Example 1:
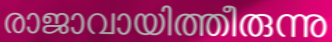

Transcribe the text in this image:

രാജാവായിത്തീരുന്നു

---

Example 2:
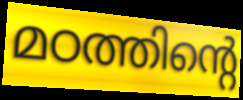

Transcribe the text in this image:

മഠത്തിന്റെ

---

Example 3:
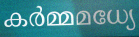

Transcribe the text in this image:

കർമ്മമധ്യേ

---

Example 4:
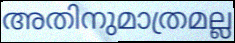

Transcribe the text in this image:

അതിനുമാത്രമല്ല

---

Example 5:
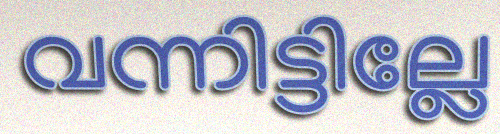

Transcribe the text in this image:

വന്നിട്ടില്ലേ